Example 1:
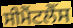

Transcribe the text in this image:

ਸੀਮੈਂਟਲੈੱਸ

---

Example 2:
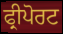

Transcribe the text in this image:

ਫ੍ਰੀਪੋਰਟ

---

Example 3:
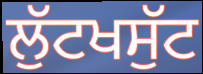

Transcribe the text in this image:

ਲੁੱਟਖਸੁੱਟ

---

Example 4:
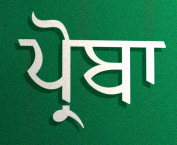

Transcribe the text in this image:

ਪ੍ਰੋਬਾ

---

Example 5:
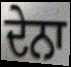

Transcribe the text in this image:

ਦੇਨਾ